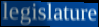
legislature